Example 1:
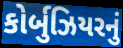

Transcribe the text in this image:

કોર્બુઝિયરનું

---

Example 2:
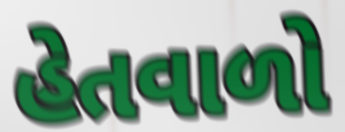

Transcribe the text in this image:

હેતવાળો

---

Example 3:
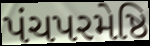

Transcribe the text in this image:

પંચપરમેષ્ઠિ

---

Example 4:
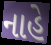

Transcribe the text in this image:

નાહે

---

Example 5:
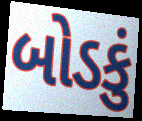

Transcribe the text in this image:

બોડકું